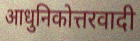
आधुनिकोत्तरवादी